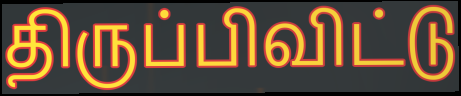
திருப்பிவிட்டு